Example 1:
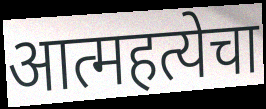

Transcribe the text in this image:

आत्महत्येचा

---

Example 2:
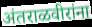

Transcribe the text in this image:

अंतराळवीरांना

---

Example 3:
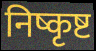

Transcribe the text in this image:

निष्कृष्ट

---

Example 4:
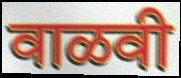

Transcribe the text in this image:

वाळवी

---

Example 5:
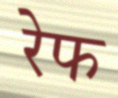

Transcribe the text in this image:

रेफ